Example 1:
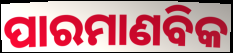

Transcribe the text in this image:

ପାରମାଣବିକ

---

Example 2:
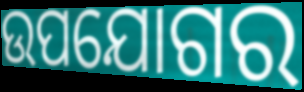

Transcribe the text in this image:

ଉପଯୋଗର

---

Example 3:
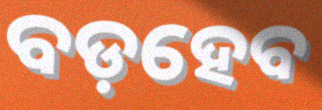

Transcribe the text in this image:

ବଡ଼ହେବ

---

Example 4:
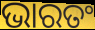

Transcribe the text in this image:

ଭାରତଂ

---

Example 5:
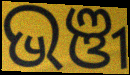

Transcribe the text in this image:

ଭଞ୍ଜ